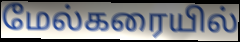
மேல்கரையில்